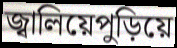
জ্বালিয়েপুড়িয়ে